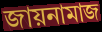
জায়নামাজ